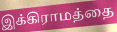
இக்கிராமத்தை